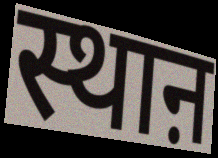
स्थाऩ